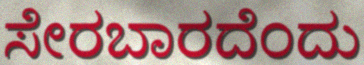
ಸೇರಬಾರದೆಂದು